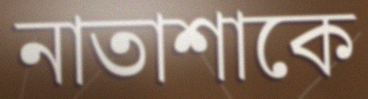
নাতাশাকে